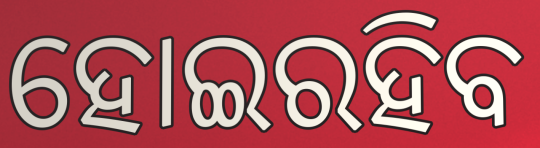
ହୋଇରହିବ